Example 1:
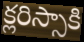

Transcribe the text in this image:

క్లరిస్సాకి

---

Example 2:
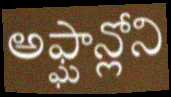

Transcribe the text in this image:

అఫ్ఘాన్లోని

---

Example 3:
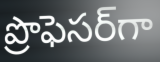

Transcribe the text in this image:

ప్రొఫెసర్‌గా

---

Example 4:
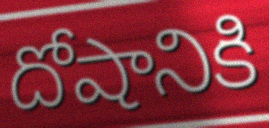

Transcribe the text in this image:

దోషానికి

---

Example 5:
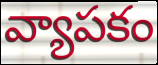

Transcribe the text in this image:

వ్యాపకం